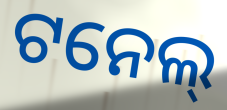
ଟନେଲ୍